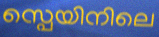
സ്പെയിനിലെ